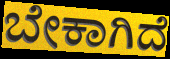
ಬೇಕಾಗಿದೆ